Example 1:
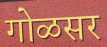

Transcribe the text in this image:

गोळसर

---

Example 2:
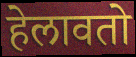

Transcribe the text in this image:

हेलावतो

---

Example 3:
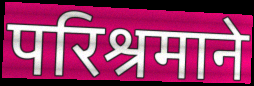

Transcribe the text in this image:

परिश्रमाने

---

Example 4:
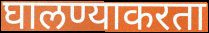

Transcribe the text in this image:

घालण्याकरता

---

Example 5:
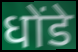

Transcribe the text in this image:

धोंडे